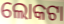
ଲୋକଟା